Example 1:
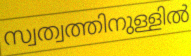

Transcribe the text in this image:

സ്വത്വത്തിനുള്ളിൽ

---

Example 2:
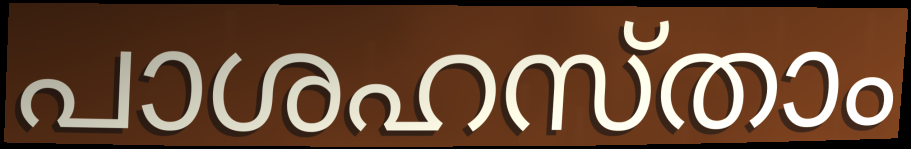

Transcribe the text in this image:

പാശഹസ്താം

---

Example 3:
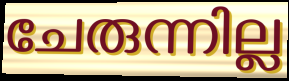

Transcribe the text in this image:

ചേരുന്നില്ല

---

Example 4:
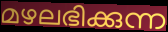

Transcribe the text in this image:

മഴലഭിക്കുന്ന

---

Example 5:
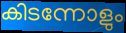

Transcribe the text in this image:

കിടന്നോളും